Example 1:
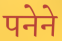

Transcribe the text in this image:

पनेने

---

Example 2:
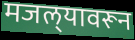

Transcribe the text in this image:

मजल्यावरून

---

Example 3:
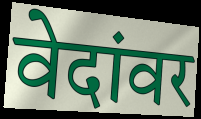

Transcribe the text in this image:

वेदांवर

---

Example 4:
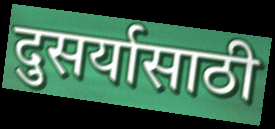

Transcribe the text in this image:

दुसर्यासाठी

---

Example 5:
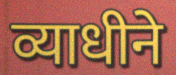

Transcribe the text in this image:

व्याधीने